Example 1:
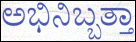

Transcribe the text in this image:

ಅಭಿನಿಬ್ಬತ್ತಾ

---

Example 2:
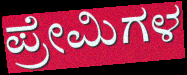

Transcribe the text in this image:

ಪ್ರೇಮಿಗಳ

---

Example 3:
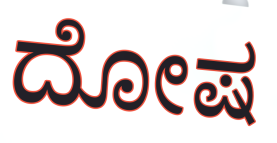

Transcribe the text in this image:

ದೋಷ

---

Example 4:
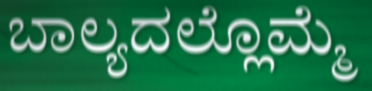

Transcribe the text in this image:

ಬಾಲ್ಯದಲ್ಲೊಮ್ಮೆ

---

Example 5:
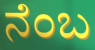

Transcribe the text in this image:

ನೆಂಬ